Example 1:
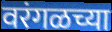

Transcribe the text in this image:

वरंगळच्या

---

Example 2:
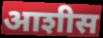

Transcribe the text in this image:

आशीस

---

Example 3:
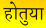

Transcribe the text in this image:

होतुया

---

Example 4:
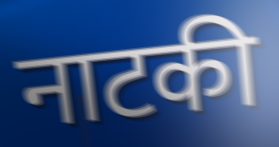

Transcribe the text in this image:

नाटकी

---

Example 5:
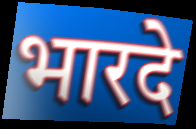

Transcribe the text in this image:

भारदे